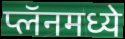
प्लॅनमध्ये